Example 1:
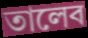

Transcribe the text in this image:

তালেব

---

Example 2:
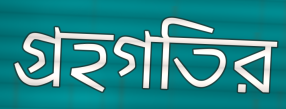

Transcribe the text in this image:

গ্রহগতির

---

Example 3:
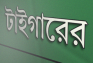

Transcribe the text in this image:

টাইগারের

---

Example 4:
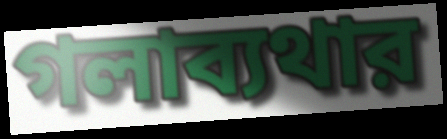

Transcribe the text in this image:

গলাব্যথার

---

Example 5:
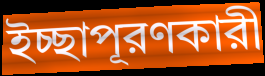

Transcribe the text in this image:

ইচ্ছাপূরণকারী